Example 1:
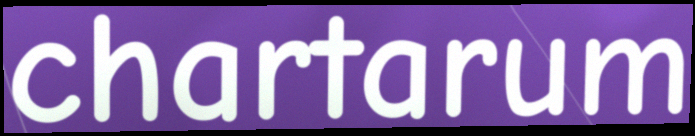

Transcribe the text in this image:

chartarum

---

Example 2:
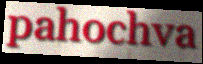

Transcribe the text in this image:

pahochva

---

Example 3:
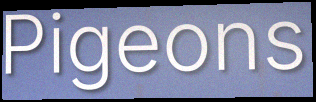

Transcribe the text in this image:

Pigeons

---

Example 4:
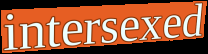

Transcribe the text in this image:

intersexed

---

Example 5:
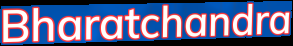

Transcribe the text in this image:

Bharatchandra